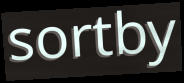
sortby